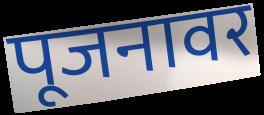
पूजनावर